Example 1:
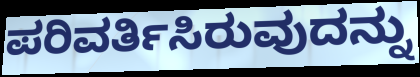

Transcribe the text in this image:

ಪರಿವರ್ತಿಸಿರುವುದನ್ನು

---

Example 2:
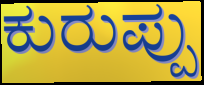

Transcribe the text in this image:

ಕುರುಪ್ಪು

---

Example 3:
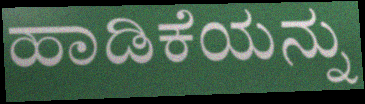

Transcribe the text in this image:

ಹಾಡಿಕೆಯನ್ನು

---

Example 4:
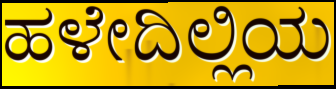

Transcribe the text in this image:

ಹಳೇದಿಲ್ಲಿಯ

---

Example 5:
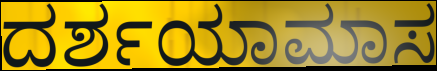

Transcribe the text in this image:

ದರ್ಶಯಾಮಾಸ